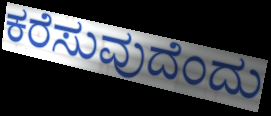
ಕರೆಸುವುದೆಂದು